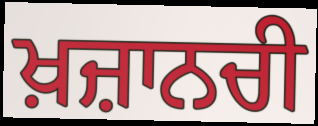
ਖ਼ਜ਼ਾਨਚੀ